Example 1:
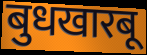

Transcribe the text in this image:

बुधखारबू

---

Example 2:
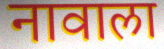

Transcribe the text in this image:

नावाला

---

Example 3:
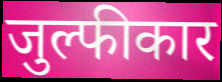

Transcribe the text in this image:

जुल्फीकार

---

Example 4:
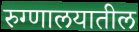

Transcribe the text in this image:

रुग्णालयातील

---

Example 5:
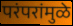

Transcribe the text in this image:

परंपरांमुळे